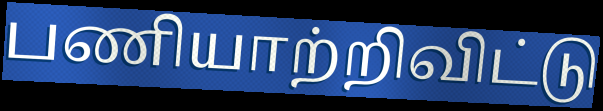
பணியாற்றிவிட்டு